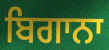
ਬਿਗਾਨਾ